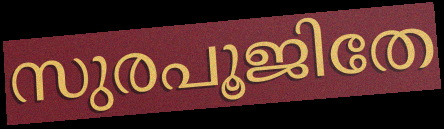
സുരപൂജിതേ